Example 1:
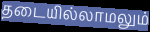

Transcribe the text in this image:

தடையில்லாமலும்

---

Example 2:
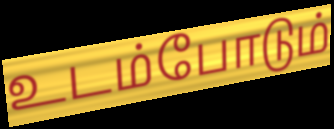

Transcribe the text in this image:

உடம்போடும்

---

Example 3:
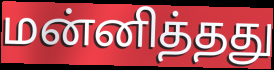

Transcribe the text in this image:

மன்னித்தது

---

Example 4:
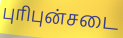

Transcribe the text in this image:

புரிபுன்சடை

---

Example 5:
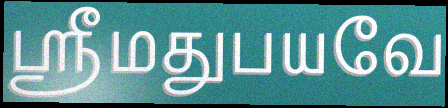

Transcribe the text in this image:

ஸ்ரீமதுபயவே